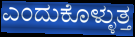
ಎಂದುಕೊಳ್ಳುತ್ತ